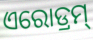
ଏରୋଡ୍ରମ୍